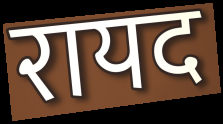
रायद